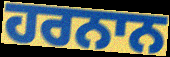
ਹਰਨਾਨ